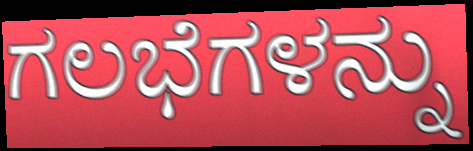
ಗಲಭೆಗಳನ್ನು